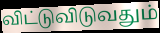
விட்டுவிடுவதும்